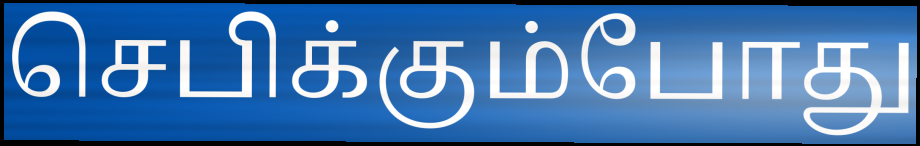
செபிக்கும்போது